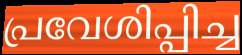
പ്രവേശിപ്പിച്ച